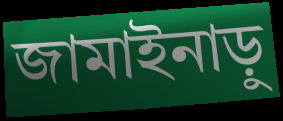
জামাইনাড়ু